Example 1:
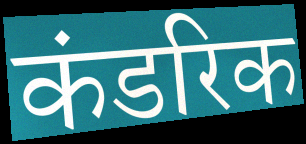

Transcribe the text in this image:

कंडरिक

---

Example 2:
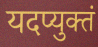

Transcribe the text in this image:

यदप्युक्तं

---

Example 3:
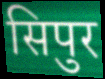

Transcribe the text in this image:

सिपुर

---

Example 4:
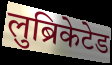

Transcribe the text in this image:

लुब्रिकेटेड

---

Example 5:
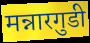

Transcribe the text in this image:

मन्नारगुडी